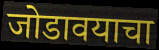
जोडावयाचा